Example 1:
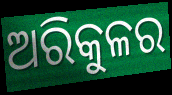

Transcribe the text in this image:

ଅରିକୁଳର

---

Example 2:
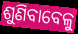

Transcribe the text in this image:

ଶୁଣିବାବେଳୁ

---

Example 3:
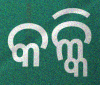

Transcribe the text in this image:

କଳ୍କି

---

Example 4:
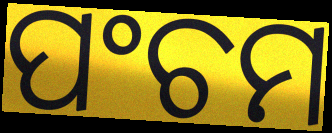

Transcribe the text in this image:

ପଂଚମ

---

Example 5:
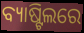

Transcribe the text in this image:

ବ୍ୟାଷ୍ଟିଲରେ